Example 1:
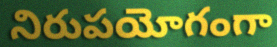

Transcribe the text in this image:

నిరుపయోగంగా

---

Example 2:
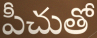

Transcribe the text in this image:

పీచుతో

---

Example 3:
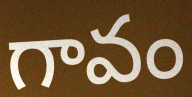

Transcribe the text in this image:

గావం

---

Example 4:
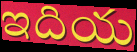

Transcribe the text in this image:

ఇదియ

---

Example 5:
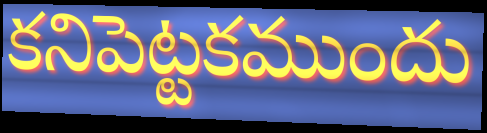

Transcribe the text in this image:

కనిపెట్టకముందు